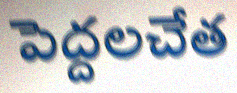
పెద్దలచేత